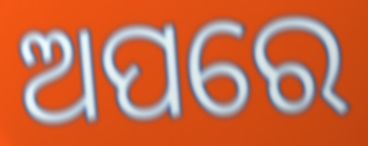
ଅପରେ